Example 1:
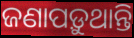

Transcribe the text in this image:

ଜଣାପଡ଼ୁଥାନ୍ତି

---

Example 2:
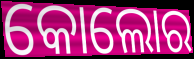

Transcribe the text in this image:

କୋଲୋର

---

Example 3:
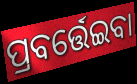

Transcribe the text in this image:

ପ୍ରବର୍ତ୍ତେଇବା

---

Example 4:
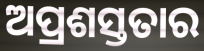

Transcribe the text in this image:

ଅପ୍ରଶସ୍ତତାର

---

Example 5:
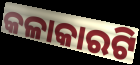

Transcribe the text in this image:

କଳାକାରଟି